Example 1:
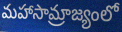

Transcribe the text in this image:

మహాసామ్రాజ్యంలో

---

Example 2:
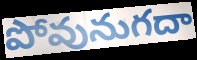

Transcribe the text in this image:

పోవునుగదా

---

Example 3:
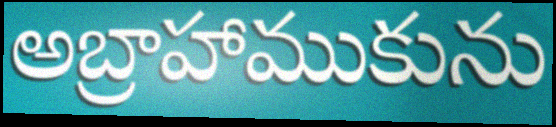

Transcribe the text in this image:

అబ్రాహాముకును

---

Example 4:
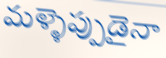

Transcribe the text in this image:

మళ్ళెప్పుడైనా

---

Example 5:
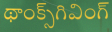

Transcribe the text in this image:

థాంక్స్‌గివింగ్